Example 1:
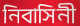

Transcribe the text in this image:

নিবাসিনী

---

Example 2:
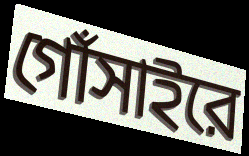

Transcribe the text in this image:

গোঁসাইরে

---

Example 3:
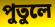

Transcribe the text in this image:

পুতুলে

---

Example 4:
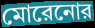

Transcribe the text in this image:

মোরেনোর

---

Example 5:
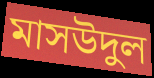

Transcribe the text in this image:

মাসউদুল